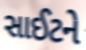
સાઈટને